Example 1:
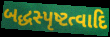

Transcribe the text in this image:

બદ્ધસ્પૃષ્ટત્વાદિ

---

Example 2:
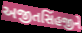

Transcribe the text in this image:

અજીતસિંહજીને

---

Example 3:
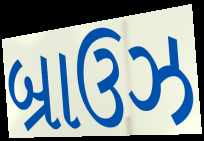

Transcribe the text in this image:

બ્રાઉઝ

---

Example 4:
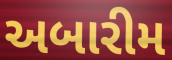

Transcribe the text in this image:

અબારીમ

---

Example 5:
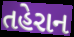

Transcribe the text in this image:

તહેરાન